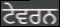
ਟੇਵਰਨ